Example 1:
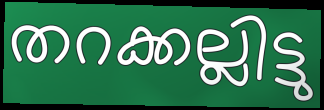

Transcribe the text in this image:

തറക്കല്ലിട്ടു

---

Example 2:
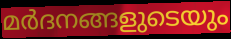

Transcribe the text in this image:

മർദനങ്ങളുടെയും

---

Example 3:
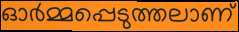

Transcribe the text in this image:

ഓർമ്മപ്പെടുത്തലാണ്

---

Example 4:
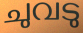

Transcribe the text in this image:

ചുവടു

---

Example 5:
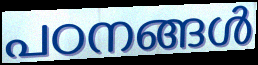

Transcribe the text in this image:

പഠനങ്ങൾ